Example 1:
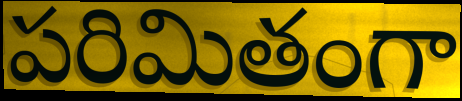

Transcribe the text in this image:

పరిమితంగా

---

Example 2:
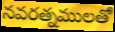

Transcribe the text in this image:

నవరత్నములతో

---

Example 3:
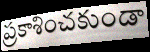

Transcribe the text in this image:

ప్రకాశించకుండా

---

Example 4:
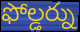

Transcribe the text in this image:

ఫోల్డర్ను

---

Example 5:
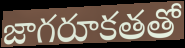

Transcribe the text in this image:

జాగరూకతతో